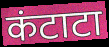
कंटाटा